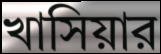
খাসিয়ার